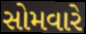
સોમવારે